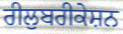
ਰੀਲੁਬਰੀਕੇਸ਼ਨ